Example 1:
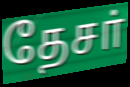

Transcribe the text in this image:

தேசர்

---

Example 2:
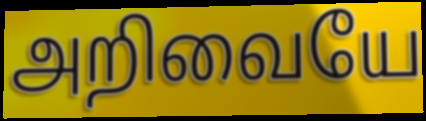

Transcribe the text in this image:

அறிவையே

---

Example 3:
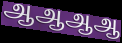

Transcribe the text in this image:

ஆஆஆஆ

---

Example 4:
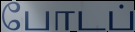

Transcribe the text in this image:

போடப்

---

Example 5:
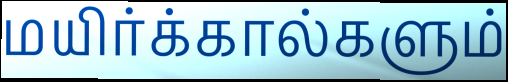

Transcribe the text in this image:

மயிர்க்கால்களும்